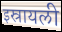
इस्रायली